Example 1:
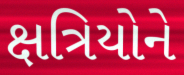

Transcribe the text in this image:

ક્ષત્રિયોને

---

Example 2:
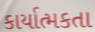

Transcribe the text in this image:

કાર્યાત્મકતા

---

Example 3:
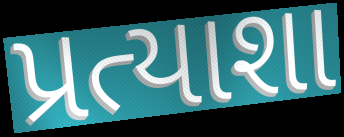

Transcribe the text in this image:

પ્રત્યાશા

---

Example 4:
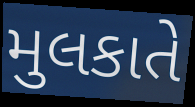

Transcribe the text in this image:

મુલકાતે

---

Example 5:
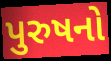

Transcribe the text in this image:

પુરુષનો